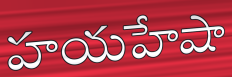
హయహేషా